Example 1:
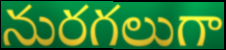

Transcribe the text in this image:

నురగలుగా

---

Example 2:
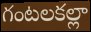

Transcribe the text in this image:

గంటలకల్లా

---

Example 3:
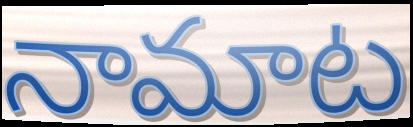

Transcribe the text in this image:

నామాట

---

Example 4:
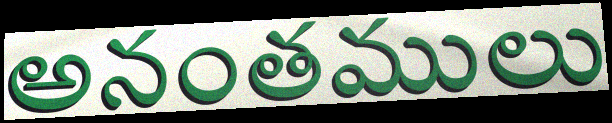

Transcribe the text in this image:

అనంతములు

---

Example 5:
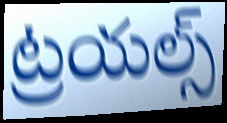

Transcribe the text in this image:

ట్రయల్స్